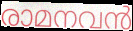
രാമനവൻ